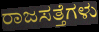
ರಾಜಸತ್ತೆಗಳು